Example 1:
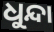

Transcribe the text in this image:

ଧୁନ୍ଦା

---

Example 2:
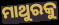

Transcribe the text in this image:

ମାଥୁରକୁ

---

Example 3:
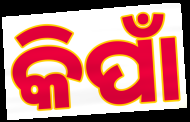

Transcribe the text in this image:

କିପାଁ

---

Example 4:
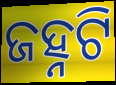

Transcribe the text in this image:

ଜହ୍ନଟି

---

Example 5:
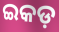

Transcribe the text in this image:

ଇକଡ଼